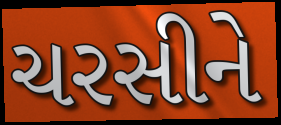
ચરસીને